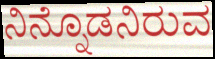
ನಿನ್ನೊಡನಿರುವ